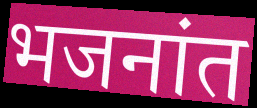
भजनांत